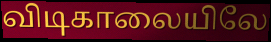
விடிகாலையிலே